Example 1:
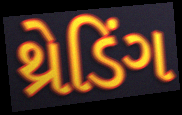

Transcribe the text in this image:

થ્રેડિંગ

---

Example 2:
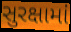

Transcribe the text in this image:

સુરક્ષામાં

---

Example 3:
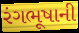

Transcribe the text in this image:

રંગભૂષાની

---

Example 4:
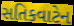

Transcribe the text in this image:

સતિકવાટેન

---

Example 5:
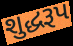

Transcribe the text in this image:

શુદ્ધરૂપ